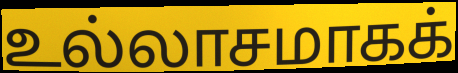
உல்லாசமாகக்